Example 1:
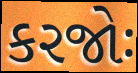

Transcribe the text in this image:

કરજોઃ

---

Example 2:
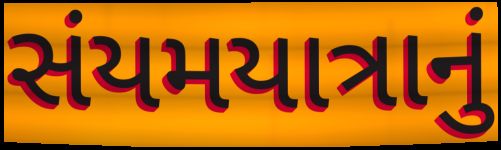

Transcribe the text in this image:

સંયમયાત્રાનું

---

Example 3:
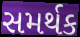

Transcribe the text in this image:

સમર્થક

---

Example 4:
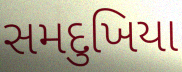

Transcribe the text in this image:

સમદુખિયા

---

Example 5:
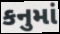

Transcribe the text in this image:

કનુમાં